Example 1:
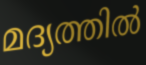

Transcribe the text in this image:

മദ്യത്തിൽ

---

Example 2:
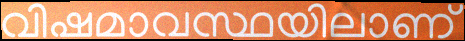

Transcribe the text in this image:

വിഷമാവസ്ഥയിലാണ്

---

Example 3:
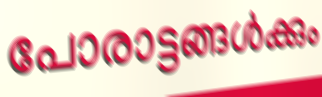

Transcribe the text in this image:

പോരാട്ടങ്ങൾക്കും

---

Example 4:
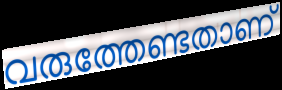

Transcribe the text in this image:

വരുത്തേണ്ടതാണ്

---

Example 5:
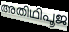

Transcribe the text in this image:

അതിഥിപൂജ